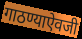
गाठण्याऐवजी